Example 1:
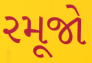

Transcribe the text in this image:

રમૂજો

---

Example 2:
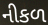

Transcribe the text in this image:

નીકળ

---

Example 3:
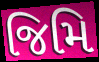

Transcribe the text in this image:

જિમિ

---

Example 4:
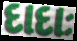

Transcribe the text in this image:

દાદાઃ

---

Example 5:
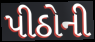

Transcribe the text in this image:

પીઠોની